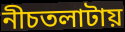
নীচতলাটায়